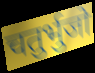
चतुर्भुजो